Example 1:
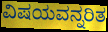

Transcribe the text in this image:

ವಿಷಯವನ್ನರಿತ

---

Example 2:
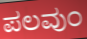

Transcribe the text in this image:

ಪಲವುಂ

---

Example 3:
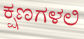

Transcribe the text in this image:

ಕ್ಷಣಗಳಲಿ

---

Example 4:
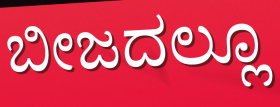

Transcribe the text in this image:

ಬೀಜದಲ್ಲೂ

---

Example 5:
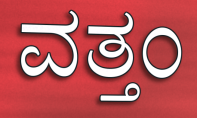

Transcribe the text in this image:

ವತ್ತಂ